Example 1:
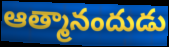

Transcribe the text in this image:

ఆత్మానందుడు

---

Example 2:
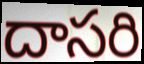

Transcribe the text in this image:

దాసరి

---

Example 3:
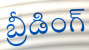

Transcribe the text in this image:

బ్రీడింగ్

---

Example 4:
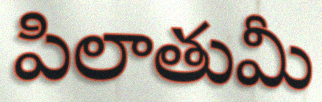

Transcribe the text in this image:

పిలాతుమీ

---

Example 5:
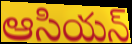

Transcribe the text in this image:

ఆసియన్